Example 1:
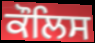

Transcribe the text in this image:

ਕੌਲਿਸ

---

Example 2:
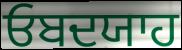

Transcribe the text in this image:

ਓਬਦਯਾਹ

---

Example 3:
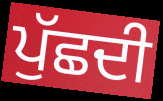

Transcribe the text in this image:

ਪੁੱਛਦੀ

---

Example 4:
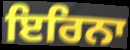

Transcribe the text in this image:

ਇਰਿਨਾ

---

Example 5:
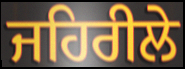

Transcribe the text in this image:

ਜਹਿਰੀਲੇ